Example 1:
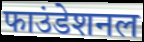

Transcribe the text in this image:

फाउंडेशनल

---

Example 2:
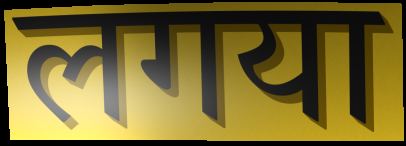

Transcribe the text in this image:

लगया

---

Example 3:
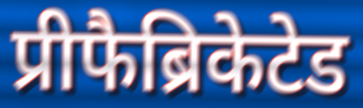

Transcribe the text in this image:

प्रीफैब्रिकेटेड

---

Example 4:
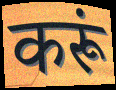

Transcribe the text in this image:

करूं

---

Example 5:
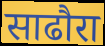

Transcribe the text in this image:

साढौरा